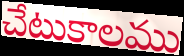
చేటుకాలము